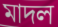
মাদল